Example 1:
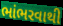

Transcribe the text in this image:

ભાંભરવાથી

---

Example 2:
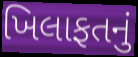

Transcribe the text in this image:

ખિલાફતનું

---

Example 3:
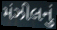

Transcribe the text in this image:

મંઝીલનું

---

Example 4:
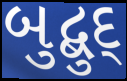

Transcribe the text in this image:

બુદ્બુદ્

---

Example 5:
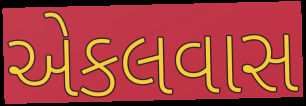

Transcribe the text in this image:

એકલવાસ